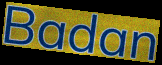
Badan